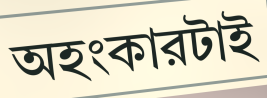
অহংকারটাই